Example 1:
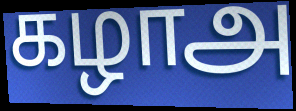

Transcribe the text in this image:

கழாஅ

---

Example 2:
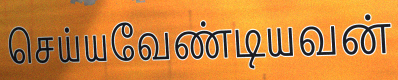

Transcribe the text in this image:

செய்யவேண்டியவன்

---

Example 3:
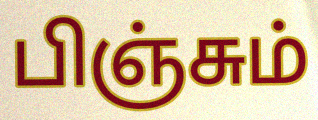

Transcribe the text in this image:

பிஞ்சும்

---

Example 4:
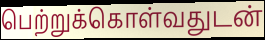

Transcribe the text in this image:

பெற்றுக்கொள்வதுடன்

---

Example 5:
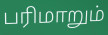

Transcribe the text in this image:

பரிமாறும்